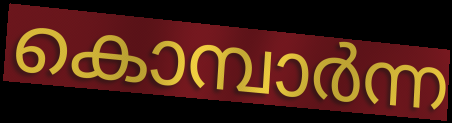
കൊമ്പാർന്ന